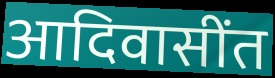
आदिवासींत